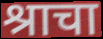
श्राचा